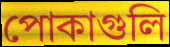
পোকাগুলি